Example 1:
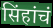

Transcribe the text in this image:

सिंहांचं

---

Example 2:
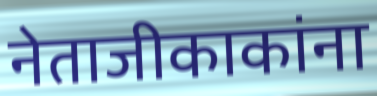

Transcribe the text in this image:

नेताजीकाकांना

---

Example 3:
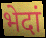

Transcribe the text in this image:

भेदां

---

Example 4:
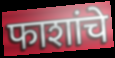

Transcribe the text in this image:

फाशांचे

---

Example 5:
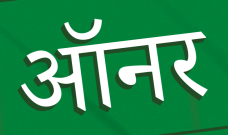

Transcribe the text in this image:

ऑनर